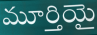
మూర్తియై